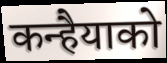
कन्हैयाको